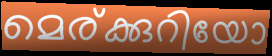
മെര്ക്കുറിയോ